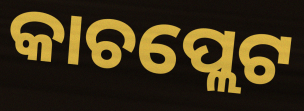
କାଚପ୍ଲେଟ